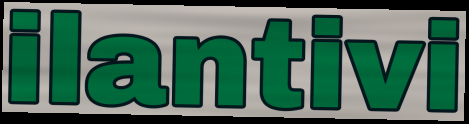
ilantivi